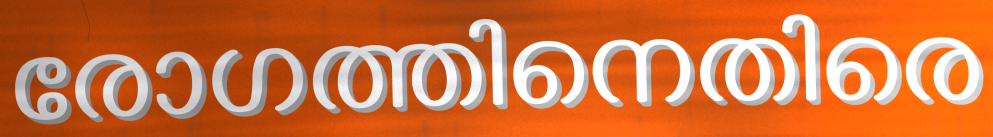
രോഗത്തിനെതിരെ